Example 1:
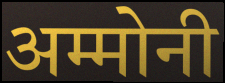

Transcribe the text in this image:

अम्मोनी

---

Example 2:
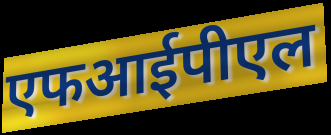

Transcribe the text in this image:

एफआईपीएल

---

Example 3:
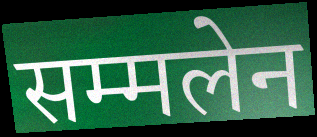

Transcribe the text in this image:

सम्मलेन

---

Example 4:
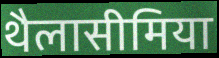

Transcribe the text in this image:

थैलासीमिया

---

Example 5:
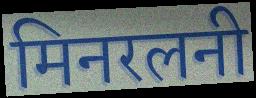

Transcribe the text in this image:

मिनरलनी